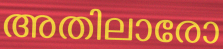
അതിലാരോ